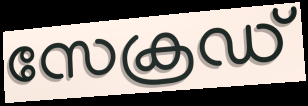
സേക്രഡ്